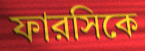
ফারসিকে